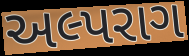
અલ્પરાગ